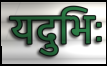
यदुभिः